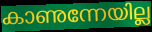
കാണുന്നേയില്ല